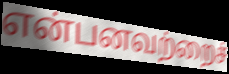
என்பனவற்றைச்